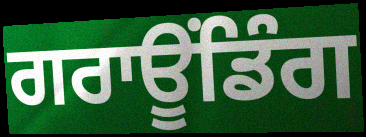
ਗਰਾਊਂਡਿੰਗ